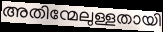
അതിന്മേലുള്ളതായി